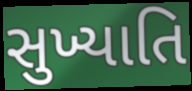
સુખ્યાતિ